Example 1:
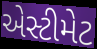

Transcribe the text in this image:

એસ્ટીમેટ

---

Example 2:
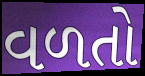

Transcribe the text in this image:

વળતો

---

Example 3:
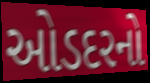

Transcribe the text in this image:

ઓડદરનો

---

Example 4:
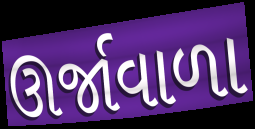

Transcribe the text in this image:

ઊર્જાવાળા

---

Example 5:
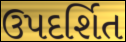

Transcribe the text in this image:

ઉપદર્શિત